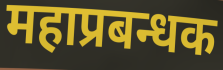
महाप्रबन्धक